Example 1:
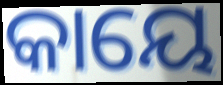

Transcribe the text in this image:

କାୟେ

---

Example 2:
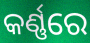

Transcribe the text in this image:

କର୍ଣ୍ଣରେ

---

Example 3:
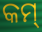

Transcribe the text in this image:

କମ୍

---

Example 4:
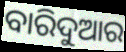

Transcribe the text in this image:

ବାରିଦୁଆର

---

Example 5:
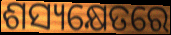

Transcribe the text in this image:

ଶସ୍ୟକ୍ଷେତରେ